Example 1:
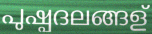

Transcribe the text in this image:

പുഷ്പദലങ്ങള്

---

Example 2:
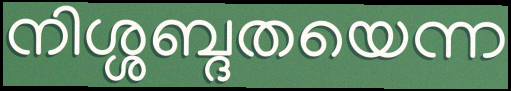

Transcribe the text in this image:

നിശ്ശബ്ദതയെന്ന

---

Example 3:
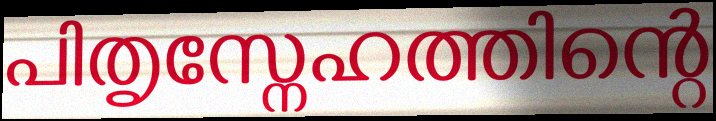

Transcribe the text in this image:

പിതൃസ്നേഹത്തിന്റെ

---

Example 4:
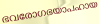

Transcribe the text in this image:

ഭവരോഗഭയാപഹായ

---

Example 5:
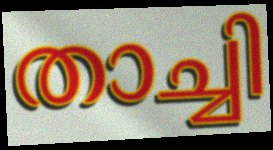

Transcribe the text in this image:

താച്ചി